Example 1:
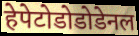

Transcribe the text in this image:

हेपेटोडोडोडेनल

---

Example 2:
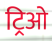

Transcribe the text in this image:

ट्रिओ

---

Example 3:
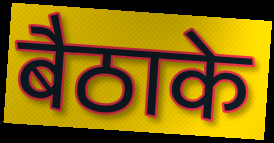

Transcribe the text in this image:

बैठाके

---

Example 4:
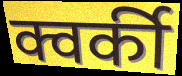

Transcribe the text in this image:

क्वर्की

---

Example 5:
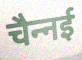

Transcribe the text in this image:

चैन्नई